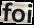
foi